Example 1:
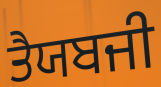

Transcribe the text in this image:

ਤੈਯਬਜੀ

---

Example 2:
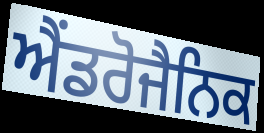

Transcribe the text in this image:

ਐਂਡਰੋਜੈਨਿਕ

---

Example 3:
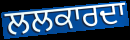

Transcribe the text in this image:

ਲਲਕਾਰਦਾ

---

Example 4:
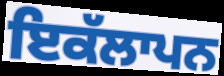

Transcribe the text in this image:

ਇਕੱਲਾਪਨ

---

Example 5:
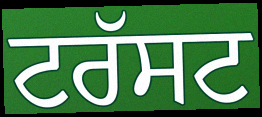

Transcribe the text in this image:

ਟਰੱਸਟ